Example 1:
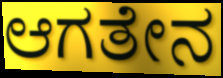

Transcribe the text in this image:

ಆಗತೇನ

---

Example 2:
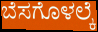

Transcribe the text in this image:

ಬೆಸಗೊಳಲ್ಕೆ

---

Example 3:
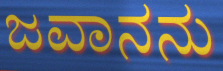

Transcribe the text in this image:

ಜವಾನನು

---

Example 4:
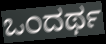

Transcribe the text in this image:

ಒಂದರ್ಥ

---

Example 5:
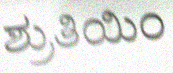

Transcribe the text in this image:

ಶ್ರುತಿಯಿಂ